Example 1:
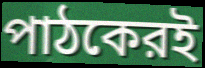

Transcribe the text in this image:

পাঠকেরই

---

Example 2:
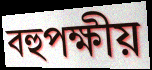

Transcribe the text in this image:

বহুপক্ষীয়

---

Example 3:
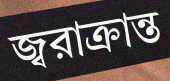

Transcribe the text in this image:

জ্বরাক্রান্ত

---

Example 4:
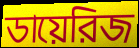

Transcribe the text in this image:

ডায়েরিজ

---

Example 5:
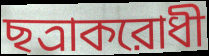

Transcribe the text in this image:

ছত্রাকরোধী